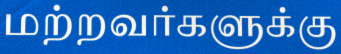
மற்றவர்களுக்கு